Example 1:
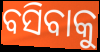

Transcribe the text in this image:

ବସିବାକୁ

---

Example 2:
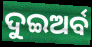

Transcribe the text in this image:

ଦୁଇଅର୍ବ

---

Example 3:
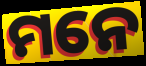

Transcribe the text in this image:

ମନେ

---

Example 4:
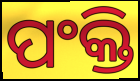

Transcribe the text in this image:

ପଂକ୍ତି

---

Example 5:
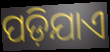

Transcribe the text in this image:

ପଡ଼ିଯାଏ